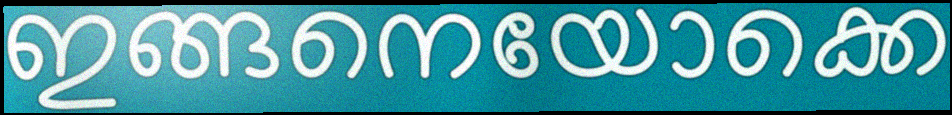
ഇങ്ങനെയോക്കെ